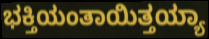
ಭಕ್ತಿಯಂತಾಯಿತ್ತಯ್ಯಾ